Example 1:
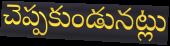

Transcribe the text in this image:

చెప్పకుండునట్లు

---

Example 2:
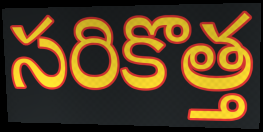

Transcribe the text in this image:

సరికొత్త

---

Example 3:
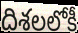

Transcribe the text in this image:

దిశలలోకీ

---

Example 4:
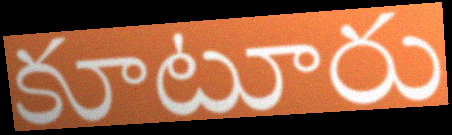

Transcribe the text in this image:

కూటూరు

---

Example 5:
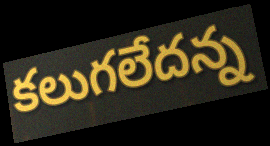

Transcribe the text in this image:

కలుగలేదన్న